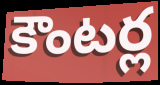
కౌంటర్ల